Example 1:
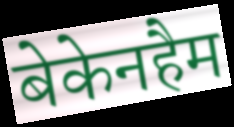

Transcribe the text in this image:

बेकेनहैम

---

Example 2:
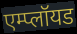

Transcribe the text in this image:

एम्प्लॉयड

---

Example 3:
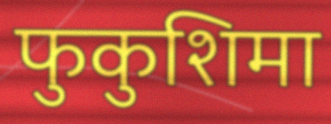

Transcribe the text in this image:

फुकुशिमा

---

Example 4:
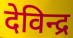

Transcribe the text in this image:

देविन्द्र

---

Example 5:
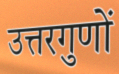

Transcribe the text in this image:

उत्तरगुणों